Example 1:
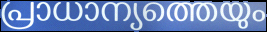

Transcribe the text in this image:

പ്രാധാന്യത്തെയും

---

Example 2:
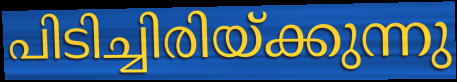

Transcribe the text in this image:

പിടിച്ചിരിയ്ക്കുന്നു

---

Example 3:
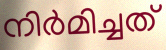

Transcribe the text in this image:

നിർമിച്ചത്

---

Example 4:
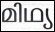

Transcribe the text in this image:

മിഥ്യ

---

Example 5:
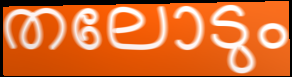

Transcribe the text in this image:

തലോടും